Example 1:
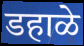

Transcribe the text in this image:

डहाळे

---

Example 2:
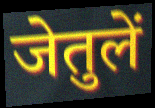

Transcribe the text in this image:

जेतुलें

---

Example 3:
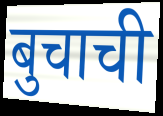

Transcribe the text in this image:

बुचाची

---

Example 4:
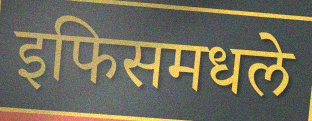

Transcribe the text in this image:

इफिसमधले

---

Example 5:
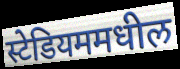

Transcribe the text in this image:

स्टेडियममधील